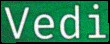
Vedi